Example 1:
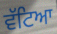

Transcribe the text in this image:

ਵੱਟਿਆ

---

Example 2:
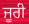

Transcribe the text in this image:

ਜੂਰੀ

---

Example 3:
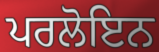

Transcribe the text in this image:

ਪਰਲੋਇਨ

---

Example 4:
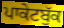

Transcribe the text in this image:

ਪਾਕੇਟਬੁੱਕ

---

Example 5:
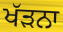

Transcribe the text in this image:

ਖੱੜਨਾ